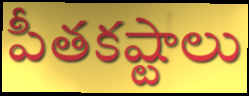
పీతకష్టాలు